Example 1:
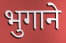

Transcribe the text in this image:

भुगाने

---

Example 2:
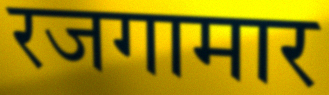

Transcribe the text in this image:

रजगामार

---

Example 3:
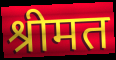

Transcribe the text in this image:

श्रीमत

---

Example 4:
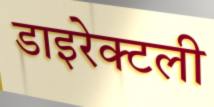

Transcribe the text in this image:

डाइरेक्टली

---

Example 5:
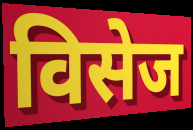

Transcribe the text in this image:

विसेज